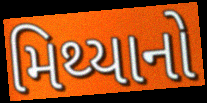
મિથ્યાનો